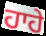
ਹਾਹੇ